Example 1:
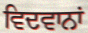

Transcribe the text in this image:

ਵਿਦਵਾਨਾਂ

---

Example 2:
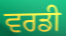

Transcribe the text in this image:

ਵਰਡੀ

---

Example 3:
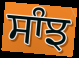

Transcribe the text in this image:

ਸਾੰਝ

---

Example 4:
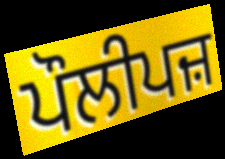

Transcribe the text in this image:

ਪੌਲੀਪਜ਼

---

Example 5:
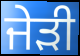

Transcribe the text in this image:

ਜੇੜੀ